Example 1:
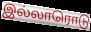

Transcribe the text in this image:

இல்லாரொடு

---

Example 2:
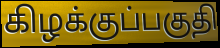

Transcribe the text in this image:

கிழக்குப்பகுதி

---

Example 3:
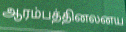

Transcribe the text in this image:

ஆரம்பத்தினலனய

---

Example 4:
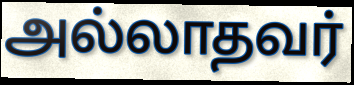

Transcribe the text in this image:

அல்லாதவர்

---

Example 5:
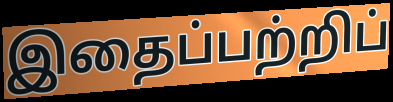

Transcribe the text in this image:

இதைப்பற்றிப்